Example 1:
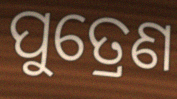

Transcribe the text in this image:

ପୁତ୍ରେଣ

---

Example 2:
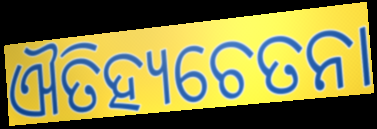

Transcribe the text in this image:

ଐତିହ୍ୟଚେତନା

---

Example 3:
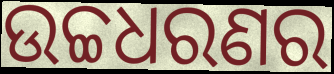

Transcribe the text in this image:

ଉଚ୍ଚଧରଣର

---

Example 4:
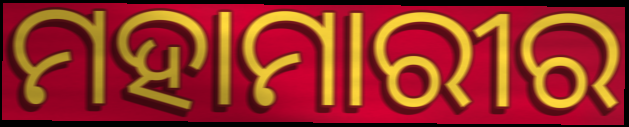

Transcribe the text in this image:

ମହାମାରୀର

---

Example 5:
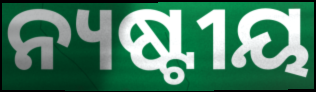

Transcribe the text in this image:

ନ୍ୟଷ୍ଟୀୟ